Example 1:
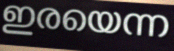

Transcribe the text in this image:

ഇരയെന്ന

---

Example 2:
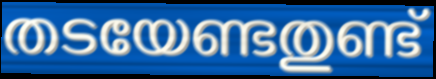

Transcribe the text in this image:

തടയേണ്ടതുണ്ട്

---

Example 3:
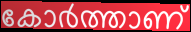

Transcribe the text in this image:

കോർത്താണ്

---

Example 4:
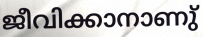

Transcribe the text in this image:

ജീവിക്കാനാണു്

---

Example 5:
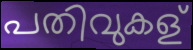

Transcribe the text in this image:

പതിവുകള്